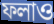
ফলাও